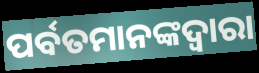
ପର୍ବତମାନଙ୍କଦ୍ଵାରା